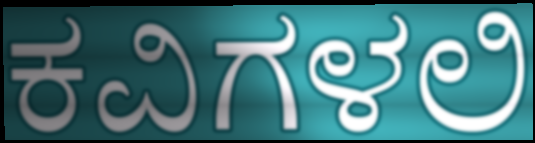
ಕವಿಗಳಲಿ